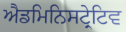
ਐਡਮਿਨਿਸਟ੍ਰੇਟਿਵ